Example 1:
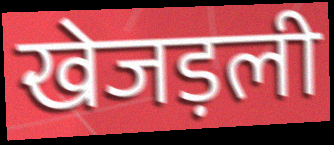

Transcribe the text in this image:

खेजड़ली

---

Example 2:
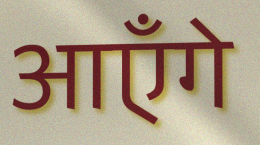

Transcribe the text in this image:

आएँगे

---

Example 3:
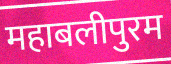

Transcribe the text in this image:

महाबलीपुरम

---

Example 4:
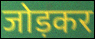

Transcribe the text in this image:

जोड़कर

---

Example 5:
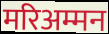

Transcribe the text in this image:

मरिअम्मन